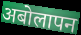
अबोलापन